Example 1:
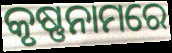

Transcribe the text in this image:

କୃଷ୍ଣନାମରେ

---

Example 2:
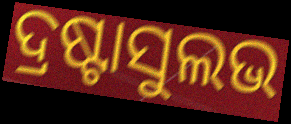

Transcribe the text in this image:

ଦ୍ରଷ୍ଟାସୁଲଭ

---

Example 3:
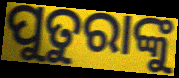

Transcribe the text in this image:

ପୁତୁରାଙ୍କୁ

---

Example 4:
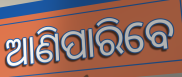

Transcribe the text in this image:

ଆଣିପାରିବେ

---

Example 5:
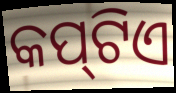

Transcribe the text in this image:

କପ୍‌ଟିଏ